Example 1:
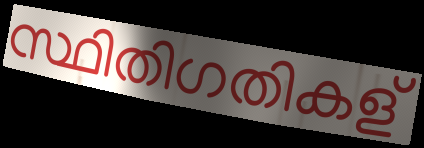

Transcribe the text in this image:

സ്ഥിതിഗതികള്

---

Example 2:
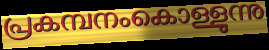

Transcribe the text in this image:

പ്രകമ്പനംകൊള്ളുന്നു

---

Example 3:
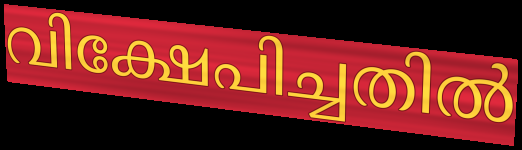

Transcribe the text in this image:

വിക്ഷേപിച്ചതിൽ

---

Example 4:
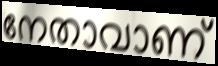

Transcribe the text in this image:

നേതാവാണ്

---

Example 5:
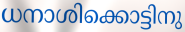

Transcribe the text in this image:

ധനാശിക്കൊട്ടിനു